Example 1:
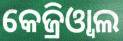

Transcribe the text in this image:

କେଜ୍ରିଓ୍ଵାଲ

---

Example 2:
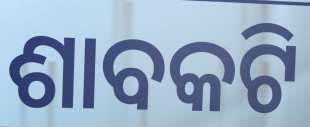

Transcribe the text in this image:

ଶାବକଟି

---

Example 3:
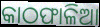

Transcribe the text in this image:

କାଠଫାଳିଆ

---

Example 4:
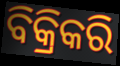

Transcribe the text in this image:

ବିକ୍ରିକରି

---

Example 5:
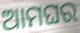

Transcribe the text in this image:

ଆମଘର